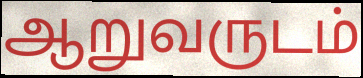
ஆறுவருடம்